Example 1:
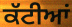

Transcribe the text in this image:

ਕੱਟੀਆਂ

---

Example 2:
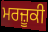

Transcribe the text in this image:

ਮਰਜ਼ੂਕੀ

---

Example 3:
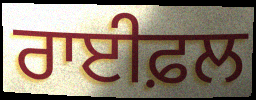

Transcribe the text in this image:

ਰਾਈਫ਼ਲ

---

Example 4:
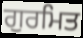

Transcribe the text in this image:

ਗੁਰਮਿਤ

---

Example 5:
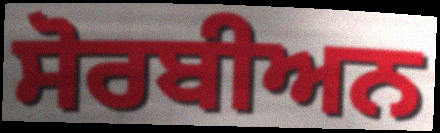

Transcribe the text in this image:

ਸੋਰਬੀਅਨ